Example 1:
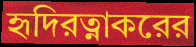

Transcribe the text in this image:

হৃদিরত্নাকরের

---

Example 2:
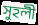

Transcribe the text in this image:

সুহলী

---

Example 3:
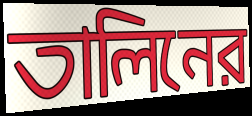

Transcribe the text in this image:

তালিনের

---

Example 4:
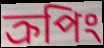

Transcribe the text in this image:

ক্রপিং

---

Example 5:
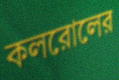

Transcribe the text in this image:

কলরোলের